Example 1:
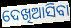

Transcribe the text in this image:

ଦେଖିଆସିବା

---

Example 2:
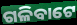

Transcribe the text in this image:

ଗଳିବାଟେ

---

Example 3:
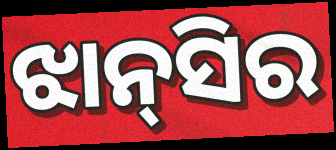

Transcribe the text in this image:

ଝାନ୍‌ସିର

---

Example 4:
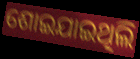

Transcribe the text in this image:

ଶୋଇଯାଇଥିଲି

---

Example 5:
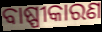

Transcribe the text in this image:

ବାଷ୍ପୀକାରଣ